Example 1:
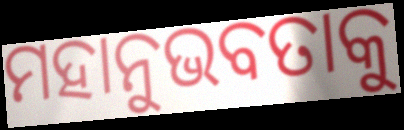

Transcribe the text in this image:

ମହାନୁଭବତାକୁ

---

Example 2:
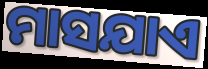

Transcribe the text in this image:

ମାସଯାଏ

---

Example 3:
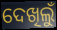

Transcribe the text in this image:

ଦେଖିଲୁଁ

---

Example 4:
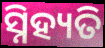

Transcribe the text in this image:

ସ୍ନିହ୍ୟତି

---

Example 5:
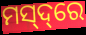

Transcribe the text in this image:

ମସ୍‌ଦ୍‌ରେ